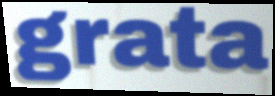
grata